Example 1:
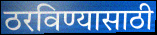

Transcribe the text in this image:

ठरविण्यासाठी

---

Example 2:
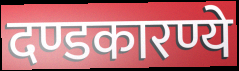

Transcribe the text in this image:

दण्डकारण्ये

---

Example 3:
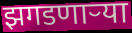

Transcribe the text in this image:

झगडणाऱ्या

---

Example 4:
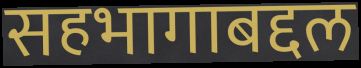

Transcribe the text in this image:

सहभागाबद्दल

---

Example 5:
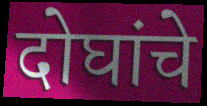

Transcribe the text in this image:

दोघांचे